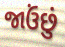
જાઉંછું